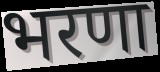
भरणा